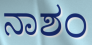
ನಾಶಂ